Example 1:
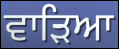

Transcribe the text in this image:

ਵਾੜਿਆ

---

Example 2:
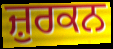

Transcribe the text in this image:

ਜ਼ੁਰਕਨ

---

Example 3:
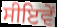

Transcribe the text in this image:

ਸੀਇਵੇਂ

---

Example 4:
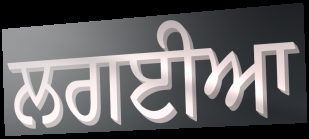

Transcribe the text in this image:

ਲਗਈਆ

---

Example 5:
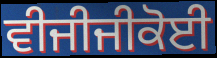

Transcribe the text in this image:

ਵੀਜੀਜੀਕੋਈ